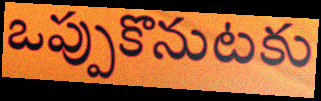
ఒప్పుకొనుటకు